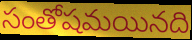
సంతోషమయినది